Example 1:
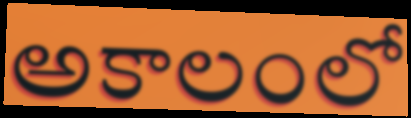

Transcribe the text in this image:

అకాలంలో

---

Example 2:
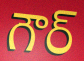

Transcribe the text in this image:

గౌర్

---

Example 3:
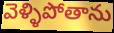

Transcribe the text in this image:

వెళ్ళిపోతాను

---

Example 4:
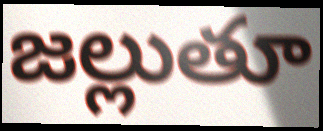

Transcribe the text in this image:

జల్లుతూ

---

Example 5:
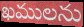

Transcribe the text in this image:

ఖములను